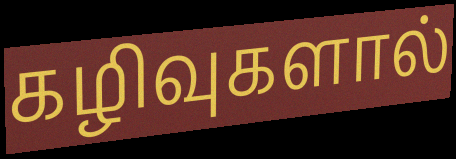
கழிவுகளால்